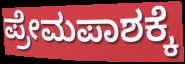
ಪ್ರೇಮಪಾಶಕ್ಕೆ